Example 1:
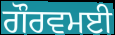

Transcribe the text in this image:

ਗੌਰਵਮਈ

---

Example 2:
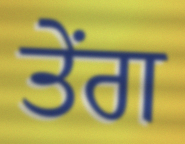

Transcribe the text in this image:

ਤੇਂਗ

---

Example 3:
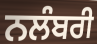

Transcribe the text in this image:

ਨਲੰਬਰੀ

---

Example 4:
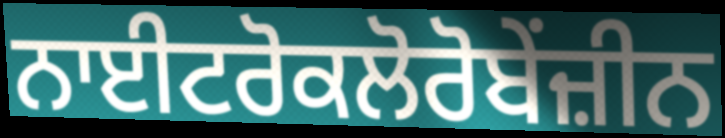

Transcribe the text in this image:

ਨਾਈਟਰੋਕਲੋਰੋਬੇਂਜ਼ੀਨ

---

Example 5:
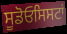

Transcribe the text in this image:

ਸੂਡੋਓਸਿਸਟਾਂ